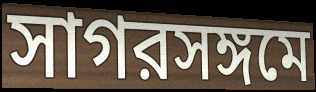
সাগরসঙ্গমে